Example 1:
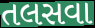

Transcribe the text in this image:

તલસવા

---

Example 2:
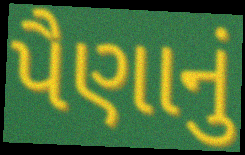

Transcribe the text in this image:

પૈણાનું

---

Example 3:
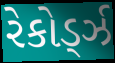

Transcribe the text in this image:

રેકોર્ડ્ઝ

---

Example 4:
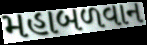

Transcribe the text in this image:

મહાબળવાન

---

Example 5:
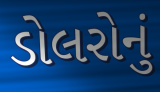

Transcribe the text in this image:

ડોલરોનું